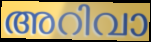
അറിവാ